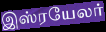
இஸ்ரயேலர்